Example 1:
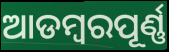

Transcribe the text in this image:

ଆଡମ୍ବରପୂର୍ଣ୍ଣ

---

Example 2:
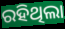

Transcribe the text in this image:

ରହିଥିଲା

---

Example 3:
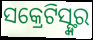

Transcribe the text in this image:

ସକ୍ରେଟିସ୍ଙ୍କର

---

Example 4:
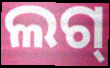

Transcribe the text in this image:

ଲଗ୍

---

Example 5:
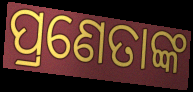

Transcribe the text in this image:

ପ୍ରଣେତାଙ୍କ